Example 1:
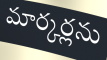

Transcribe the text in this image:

మార్కర్లను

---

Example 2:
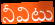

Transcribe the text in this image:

నీవిటు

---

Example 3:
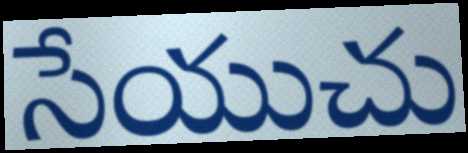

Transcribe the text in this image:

సేయుచు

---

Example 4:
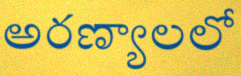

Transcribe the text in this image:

అరణ్యాలలో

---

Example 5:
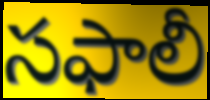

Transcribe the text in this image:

సఫాలీ